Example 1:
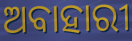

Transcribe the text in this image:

ଅବାହାରୀ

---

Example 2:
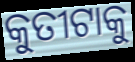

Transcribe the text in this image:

କୁତୀଟାକୁ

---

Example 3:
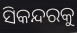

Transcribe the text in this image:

ସିକନ୍ଦରକୁ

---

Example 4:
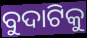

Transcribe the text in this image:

ବୁଦାଟିକୁ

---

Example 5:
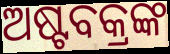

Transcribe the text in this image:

ଅଷ୍ଟବକ୍ରଙ୍କ